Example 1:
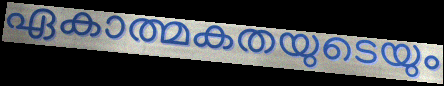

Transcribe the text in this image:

ഏകാത്മകതയുടെയും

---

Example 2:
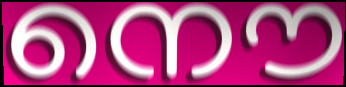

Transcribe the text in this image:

നൌ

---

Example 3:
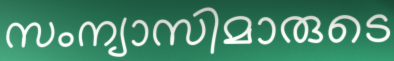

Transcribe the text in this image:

സംന്യാസിമാരുടെ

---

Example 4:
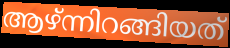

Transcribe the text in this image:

ആഴ്ന്നിറങ്ങിയത്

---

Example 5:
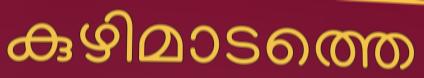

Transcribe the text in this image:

കുഴിമാടത്തെ